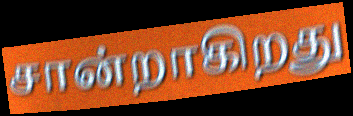
சான்றாகிறது